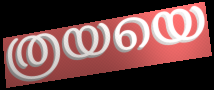
ത്രയയെ